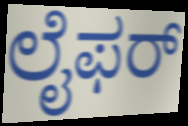
ಲೈಫರ್